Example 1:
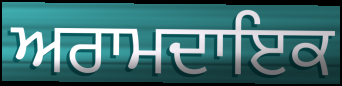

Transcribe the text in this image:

ਅਰਾਮਦਾਇਕ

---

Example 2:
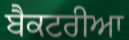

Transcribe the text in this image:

ਬੈਕਟਰੀਆ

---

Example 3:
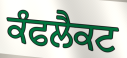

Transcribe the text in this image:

ਕੰਫਲੈਕਟ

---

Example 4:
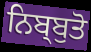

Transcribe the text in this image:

ਨਿਬ੍ਬੁਤੋ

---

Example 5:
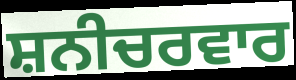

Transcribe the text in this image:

ਸ਼ਨੀਚਰਵਾਰ